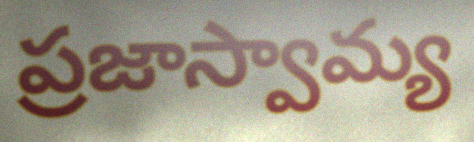
ప్రజాస్వామ్య